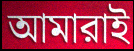
আমারাই